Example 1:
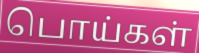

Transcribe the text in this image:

பொய்கள்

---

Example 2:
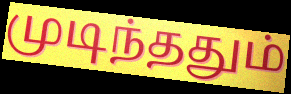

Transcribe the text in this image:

முடிந்ததும்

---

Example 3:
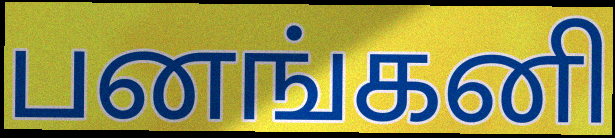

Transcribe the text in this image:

பனங்கனி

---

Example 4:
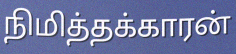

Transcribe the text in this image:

நிமித்தக்காரன்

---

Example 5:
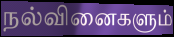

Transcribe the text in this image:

நல்வினைகளும்